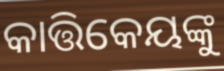
କାତ୍ତିକେୟଙ୍କୁ